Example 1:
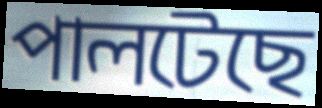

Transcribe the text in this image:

পালটেছে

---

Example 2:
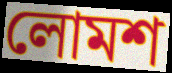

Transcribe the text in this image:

লোমশ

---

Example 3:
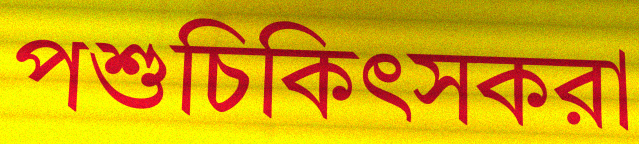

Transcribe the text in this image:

পশুচিকিৎসকরা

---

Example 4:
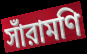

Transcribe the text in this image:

সাঁরামণি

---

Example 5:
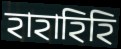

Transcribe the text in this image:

হাহাহিহি